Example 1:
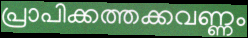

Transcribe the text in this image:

പ്രാപിക്കത്തക്കവണ്ണം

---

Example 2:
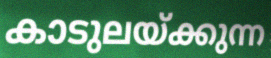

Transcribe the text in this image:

കാടുലയ്ക്കുന്ന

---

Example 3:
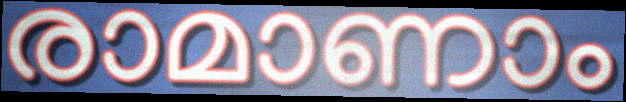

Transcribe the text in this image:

രാമാണാം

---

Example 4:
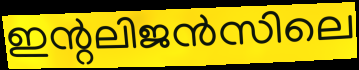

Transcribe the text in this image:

ഇന്റലിജൻസിലെ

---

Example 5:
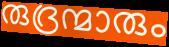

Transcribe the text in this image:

രുദ്രന്മാരും